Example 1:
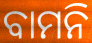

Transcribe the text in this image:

ବାମନି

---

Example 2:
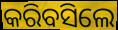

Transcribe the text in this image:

କରିବସିଲେ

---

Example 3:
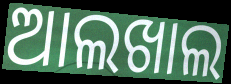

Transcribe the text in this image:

ଆଲଖାଲ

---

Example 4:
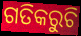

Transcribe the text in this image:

ଗତିକରୁଚି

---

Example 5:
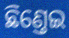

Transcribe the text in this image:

ଛିଣ୍ତେଇ